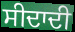
ਸੀਦਾਦੀ